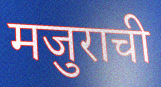
मजुराची